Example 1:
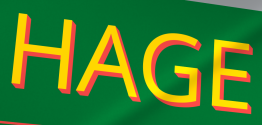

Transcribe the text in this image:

HAGE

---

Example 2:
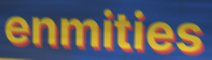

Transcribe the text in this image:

enmities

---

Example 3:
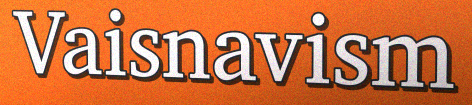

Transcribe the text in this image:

Vaisnavism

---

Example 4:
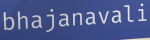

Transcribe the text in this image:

bhajanavali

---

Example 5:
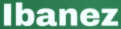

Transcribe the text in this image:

Ibanez